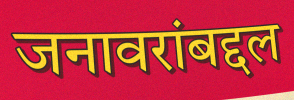
जनावरांबद्दल